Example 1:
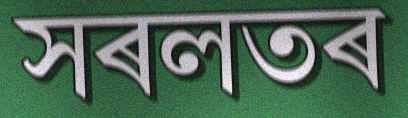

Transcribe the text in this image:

সৰলতৰ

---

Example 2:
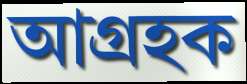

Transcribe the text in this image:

আগ্ৰহক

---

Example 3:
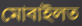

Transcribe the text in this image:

মোবাইলত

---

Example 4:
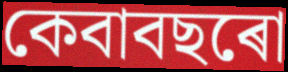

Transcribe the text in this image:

কেবাবছৰো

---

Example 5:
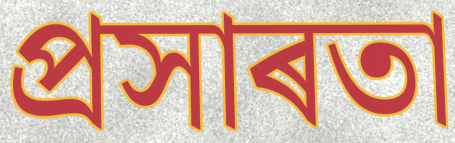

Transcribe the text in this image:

প্ৰসাৰতা